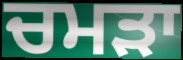
ਚਮੜਾ